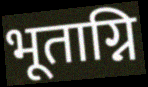
भूताग्नि